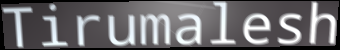
Tirumalesh